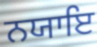
ਨਯਾਇ